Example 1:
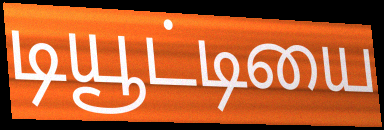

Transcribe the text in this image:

டியூட்டியை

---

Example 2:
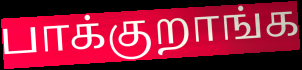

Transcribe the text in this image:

பாக்குறாங்க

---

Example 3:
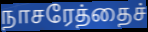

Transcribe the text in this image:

நாசரேத்தைச்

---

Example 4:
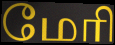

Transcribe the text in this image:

மேரி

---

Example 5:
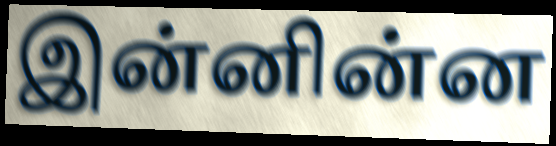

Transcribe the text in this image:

இன்னின்ன